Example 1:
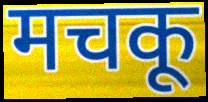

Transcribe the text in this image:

मचकू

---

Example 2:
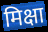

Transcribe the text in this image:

मिक्षा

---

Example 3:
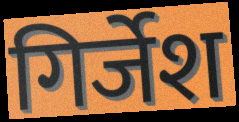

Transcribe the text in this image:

गिर्जेश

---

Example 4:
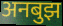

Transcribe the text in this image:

अनबुझ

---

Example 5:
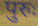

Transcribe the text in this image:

पुरुः